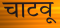
चाटवू